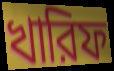
খারিফ